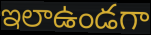
ఇలాఉండగా